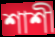
শাশী